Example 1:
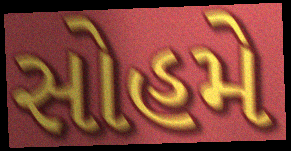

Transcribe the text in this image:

સોહમે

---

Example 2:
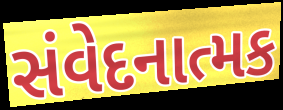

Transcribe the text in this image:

સંવેદનાત્મક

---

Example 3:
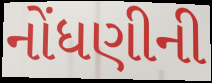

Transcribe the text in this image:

નોંધણીની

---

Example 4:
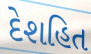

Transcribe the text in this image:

દેશહિત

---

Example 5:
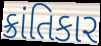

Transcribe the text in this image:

ક્રાંતિકાર